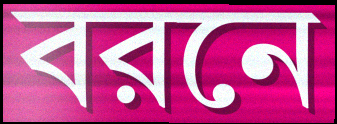
বরনে